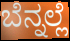
ಬೆನ್ನಲ್ಲೆ